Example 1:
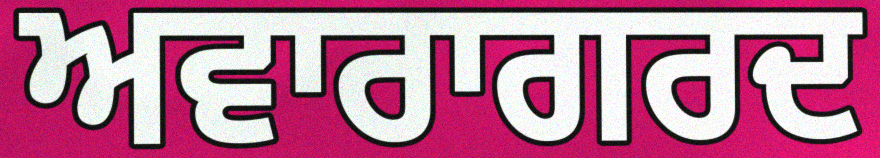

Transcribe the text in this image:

ਅਵਾਰਾਗਰਦ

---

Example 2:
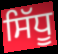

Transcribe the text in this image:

ਸਿੱਧੂ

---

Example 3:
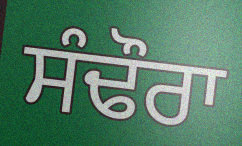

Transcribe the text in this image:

ਸੰਢੌਰਾ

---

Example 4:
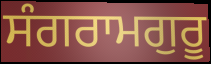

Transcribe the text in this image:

ਸੰਗਰਾਮਗੁਰੂ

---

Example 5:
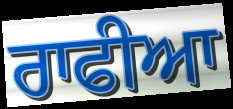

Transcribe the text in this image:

ਰਾਫੀਆ